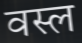
वस्ल